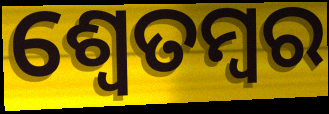
ଶ୍ଵେତମ୍ବର